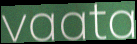
vaata